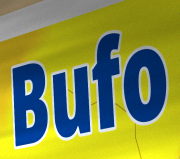
Bufo